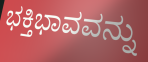
ಭಕ್ತಿಭಾವವನ್ನು